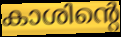
കാശിന്റെ